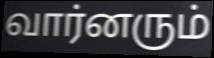
வார்னரும்